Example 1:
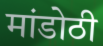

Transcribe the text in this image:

मांडोठी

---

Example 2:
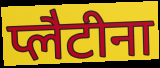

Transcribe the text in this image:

प्लैटीना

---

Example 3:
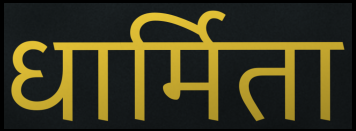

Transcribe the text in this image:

धार्मिता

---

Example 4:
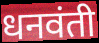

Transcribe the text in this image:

धनवंती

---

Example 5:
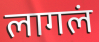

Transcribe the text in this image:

लागलं